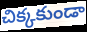
చిక్కకుండా